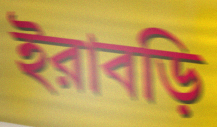
ইরাবড়ি